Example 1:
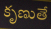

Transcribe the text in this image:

కృణుతే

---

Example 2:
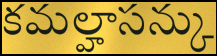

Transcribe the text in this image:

కమల్హాసన్కు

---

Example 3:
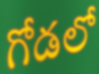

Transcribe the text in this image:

గోడలో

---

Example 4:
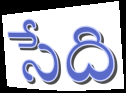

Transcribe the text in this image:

సేది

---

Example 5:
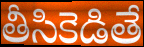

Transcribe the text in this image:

తీసికెడితే